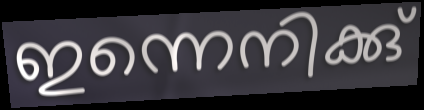
ഇന്നെനിക്കു്